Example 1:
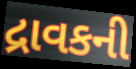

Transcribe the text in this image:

દ્રાવકની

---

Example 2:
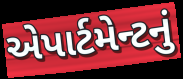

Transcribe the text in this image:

એપાર્ટમેન્ટનું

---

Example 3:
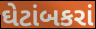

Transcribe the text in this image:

ઘેટાંબકરાં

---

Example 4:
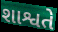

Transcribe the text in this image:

શાશ્વતે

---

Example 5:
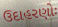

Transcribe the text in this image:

ઉદાહરણોઃ